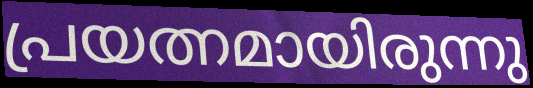
പ്രയത്നമായിരുന്നു